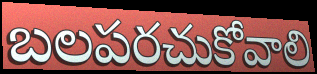
బలపరచుకోవాలి